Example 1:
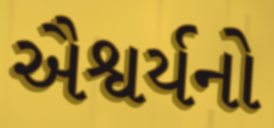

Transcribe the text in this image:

ઐશ્વર્યનો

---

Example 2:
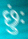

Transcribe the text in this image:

છુંઃ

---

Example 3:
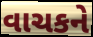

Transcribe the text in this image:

વાચકને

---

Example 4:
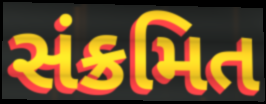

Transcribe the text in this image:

સંક્રમિત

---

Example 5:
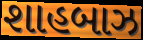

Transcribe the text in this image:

શાહબાઝ